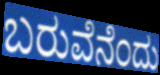
ಬರುವೆನೆಂದು